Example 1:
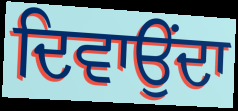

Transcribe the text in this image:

ਦਿਵਾਉਂਦਾ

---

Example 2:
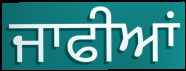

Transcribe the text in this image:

ਜਾਫੀਆਂ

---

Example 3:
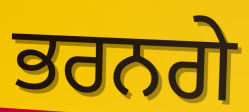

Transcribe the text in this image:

ਭਰਨਗੇ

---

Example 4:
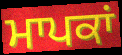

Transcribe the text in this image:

ਮਾਪਕਾਂ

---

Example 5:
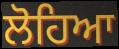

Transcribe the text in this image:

ਲੋਹਿਆ